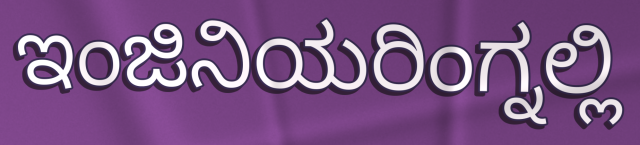
ಇಂಜಿನಿಯರಿಂಗ್ನಲ್ಲಿ